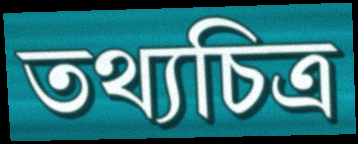
তথ্যচিত্র